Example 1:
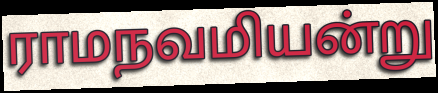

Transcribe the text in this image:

ராமநவமியன்று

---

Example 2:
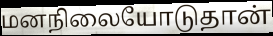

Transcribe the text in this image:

மனநிலையோடுதான்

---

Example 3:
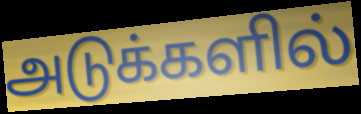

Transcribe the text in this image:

அடுக்களில்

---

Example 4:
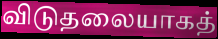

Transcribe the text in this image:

விடுதலையாகத்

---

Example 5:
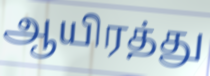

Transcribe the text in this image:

ஆயிரத்து